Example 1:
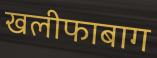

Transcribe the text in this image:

खलीफाबाग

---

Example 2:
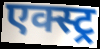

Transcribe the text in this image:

एक्स्ट्र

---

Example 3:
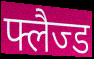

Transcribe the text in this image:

फ्लैज्ड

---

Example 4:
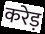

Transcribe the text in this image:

करेड़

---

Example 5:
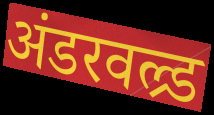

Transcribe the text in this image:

अंडरवल्र्ड